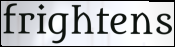
frightens